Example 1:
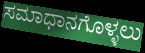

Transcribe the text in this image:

ಸಮಾಧಾನಗೊಳ್ಳಲು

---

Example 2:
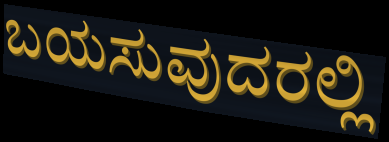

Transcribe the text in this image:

ಬಯಸುವುದರಲ್ಲಿ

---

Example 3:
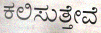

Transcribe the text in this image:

ಕಲಿಸುತ್ತೇವೆ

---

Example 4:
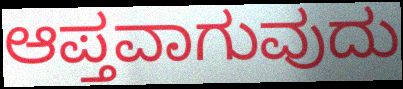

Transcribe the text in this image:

ಆಪ್ತವಾಗುವುದು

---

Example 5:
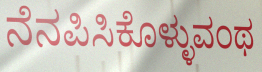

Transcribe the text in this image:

ನೆನಪಿಸಿಕೊಳ್ಳುವಂಥ